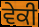
ਵੇਕੀ